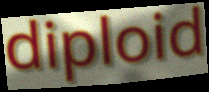
diploid